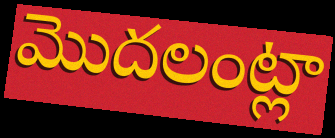
మొదలంట్లా